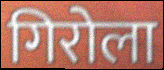
गिरोला